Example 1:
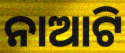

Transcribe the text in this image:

ନାଆଟି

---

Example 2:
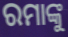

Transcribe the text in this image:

ରମାଙ୍କୁ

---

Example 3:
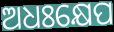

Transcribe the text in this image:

ଅଧଃକ୍ଷେପ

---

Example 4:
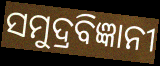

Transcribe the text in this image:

ସମୁଦ୍ରବିଜ୍ଞାନୀ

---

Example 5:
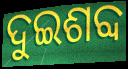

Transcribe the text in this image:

ଦୁଇଶବ୍ଦ